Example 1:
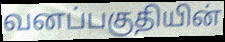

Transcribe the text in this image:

வனப்பகுதியின்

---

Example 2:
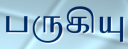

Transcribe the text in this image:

பருகியு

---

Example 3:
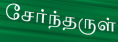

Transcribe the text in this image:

சேர்ந்தருள்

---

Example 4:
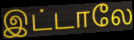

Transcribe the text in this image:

இட்டாலே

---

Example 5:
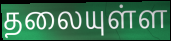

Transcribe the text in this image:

தலையுள்ள